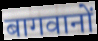
बागवानों